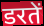
डरतें